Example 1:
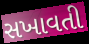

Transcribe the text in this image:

સખાવતી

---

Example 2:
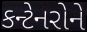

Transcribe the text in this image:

કન્ટેનરોને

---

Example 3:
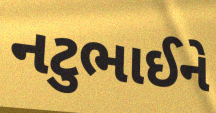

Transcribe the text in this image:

નટુભાઈને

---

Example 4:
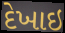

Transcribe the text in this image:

દેખાઇ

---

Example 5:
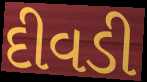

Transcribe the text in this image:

દીવડી